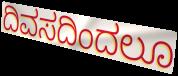
ದಿವಸದಿಂದಲೂ